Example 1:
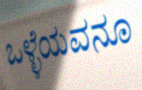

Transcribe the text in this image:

ಒಳ್ಳೆಯವನೂ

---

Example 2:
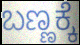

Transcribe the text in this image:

ಬಣ್ಣಕ್ಕೆ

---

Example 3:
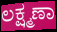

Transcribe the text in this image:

ಲಕ್ಷ್ಮಣಾ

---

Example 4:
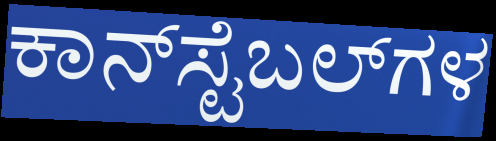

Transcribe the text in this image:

ಕಾನ್‌ಸ್ಟೆಬಲ್‌ಗಳ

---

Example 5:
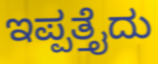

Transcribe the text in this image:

ಇಪ್ಪತ್ತೈದು